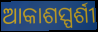
ଆକାଶସ୍ପର୍ଶୀ